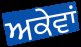
ਅਕੇਵਾਂ